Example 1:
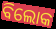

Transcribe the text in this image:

ବିଲୋକ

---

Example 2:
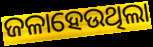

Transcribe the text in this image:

ଜଳାହେଉଥିଲା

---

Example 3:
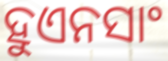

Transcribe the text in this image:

ହୁଏନସାଂ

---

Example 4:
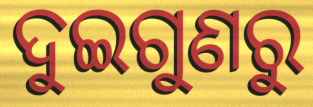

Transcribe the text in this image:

ଦୁଇଗୁଣରୁ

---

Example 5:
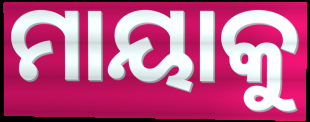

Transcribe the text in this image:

ମାୟାକୁ